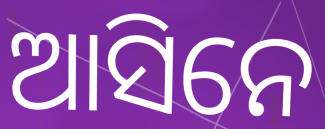
ଆସିନେ